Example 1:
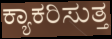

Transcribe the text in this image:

ಕ್ಯಾಕರಿಸುತ್ತ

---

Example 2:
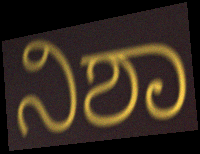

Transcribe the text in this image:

ನಿಶಾ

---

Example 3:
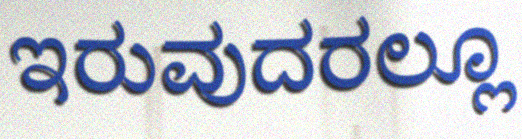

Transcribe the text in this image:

ಇರುವುದರಲ್ಲೂ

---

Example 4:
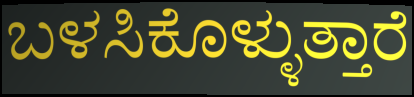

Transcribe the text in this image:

ಬಳಸಿಕೊಳ್ಳುತ್ತಾರೆ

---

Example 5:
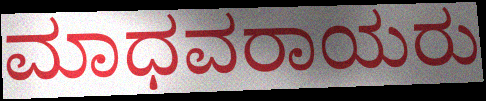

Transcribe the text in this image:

ಮಾಧವರಾಯರು